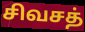
சிவசத்